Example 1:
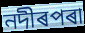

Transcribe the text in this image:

নদীৰপৰা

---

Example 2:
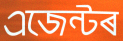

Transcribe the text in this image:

এজেন্টৰ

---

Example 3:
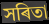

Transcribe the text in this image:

সৰিতা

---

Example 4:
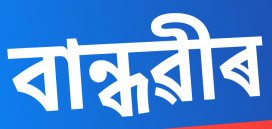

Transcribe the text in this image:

বান্ধৱীৰ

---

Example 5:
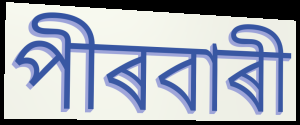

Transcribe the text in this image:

পীৰবাৰী